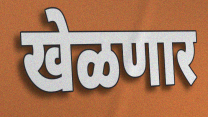
खेळणार